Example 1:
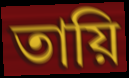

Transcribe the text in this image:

তায়ি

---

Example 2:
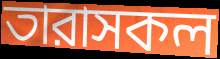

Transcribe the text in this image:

তারাসকল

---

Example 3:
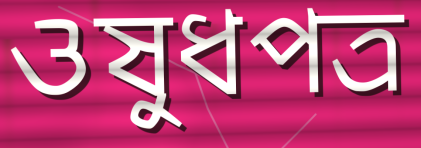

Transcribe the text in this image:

ওষুধপত্র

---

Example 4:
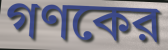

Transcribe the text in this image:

গণকের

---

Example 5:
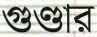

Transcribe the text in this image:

গুণ্ডার